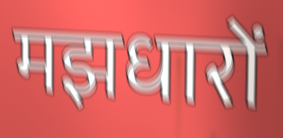
मझधारों